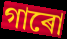
গাৰো